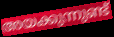
അയക്കുന്നുണ്ട്